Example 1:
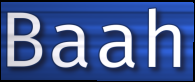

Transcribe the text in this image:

Baah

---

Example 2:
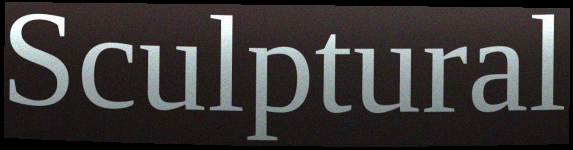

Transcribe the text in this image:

Sculptural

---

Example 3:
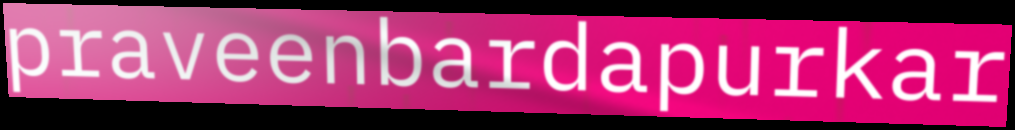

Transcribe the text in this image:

praveenbardapurkar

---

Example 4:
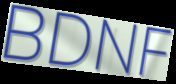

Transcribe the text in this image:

BDNF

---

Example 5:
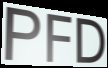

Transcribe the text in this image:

PFD